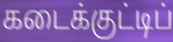
கடைக்குட்டிப்